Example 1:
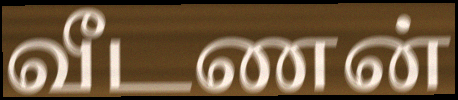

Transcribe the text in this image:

வீடணன்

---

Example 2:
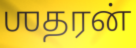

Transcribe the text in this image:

ஶதரன்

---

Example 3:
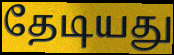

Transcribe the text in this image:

தேடியது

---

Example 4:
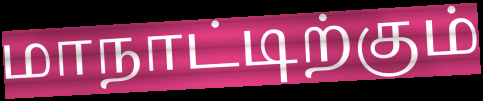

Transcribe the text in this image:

மாநாட்டிற்கும்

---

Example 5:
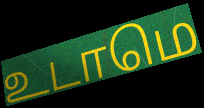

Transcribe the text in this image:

உடாமெ